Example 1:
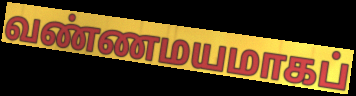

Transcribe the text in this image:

வண்ணமயமாகப்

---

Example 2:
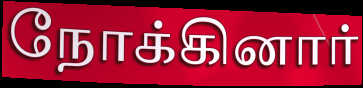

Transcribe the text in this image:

நோக்கினார்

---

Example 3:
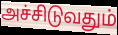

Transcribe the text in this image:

அச்சிடுவதும்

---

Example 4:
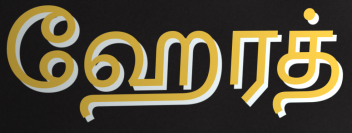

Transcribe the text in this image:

ஹேரத்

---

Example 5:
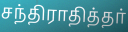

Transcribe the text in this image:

சந்திராதித்தர்